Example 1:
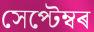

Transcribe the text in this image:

সেপ্টেম্বৰ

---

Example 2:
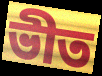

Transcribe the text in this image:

ভীত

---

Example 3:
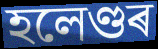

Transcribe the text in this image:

হলেণ্ডৰ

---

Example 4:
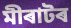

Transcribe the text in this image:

মীৰাটৰ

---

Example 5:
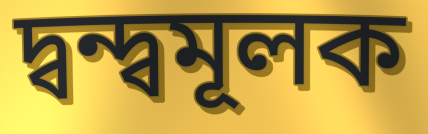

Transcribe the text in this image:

দ্বন্দ্বমূলক